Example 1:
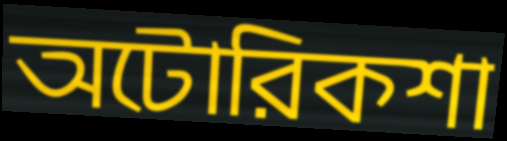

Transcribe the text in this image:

অটোরিকশা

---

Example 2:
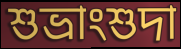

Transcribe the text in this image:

শুভ্রাংশুদা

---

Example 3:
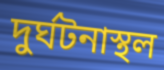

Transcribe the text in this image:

দুর্ঘটনাস্থল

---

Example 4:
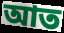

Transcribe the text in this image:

আত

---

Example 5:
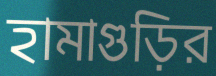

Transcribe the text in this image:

হামাগুড়ির